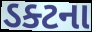
ડક્ટના